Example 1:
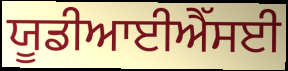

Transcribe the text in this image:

ਯੂਡੀਆਈਐੱਸਈ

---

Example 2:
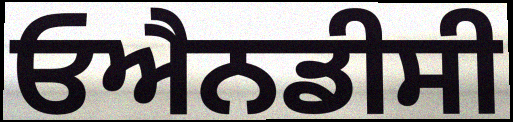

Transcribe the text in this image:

ਓਐਨਡੀਸੀ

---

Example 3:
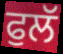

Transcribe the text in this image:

ਫੁਲੱ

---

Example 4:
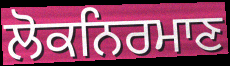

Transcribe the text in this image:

ਲੋਕਨਿਰਮਾਣ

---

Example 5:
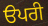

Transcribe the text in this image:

ੳਪਰੀ